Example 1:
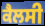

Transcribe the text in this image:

ਕੈਲਸੀ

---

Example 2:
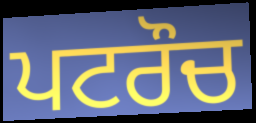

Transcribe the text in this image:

ਪਟਰੌਚ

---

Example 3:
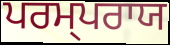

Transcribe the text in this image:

ਪਰਮ੍ਪਰਾਯ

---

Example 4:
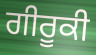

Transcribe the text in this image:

ਗੀਰੂਕੀ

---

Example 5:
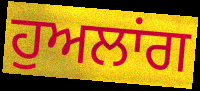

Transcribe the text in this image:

ਹੁਅਲਾਂਗ